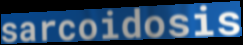
sarcoidosis